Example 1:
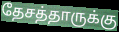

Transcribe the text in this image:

தேசத்தாருக்கு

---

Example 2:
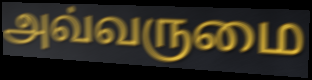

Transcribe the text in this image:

அவ்வருமை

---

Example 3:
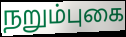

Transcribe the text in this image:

நறும்புகை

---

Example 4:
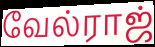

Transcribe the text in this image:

வேல்ராஜ்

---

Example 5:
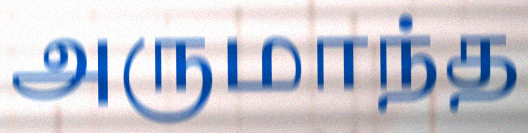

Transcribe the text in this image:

அருமாந்த